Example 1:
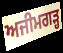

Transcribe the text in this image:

ਅਜੀਮਗੜ੍ਹ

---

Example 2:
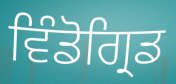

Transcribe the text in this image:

ਵਿੰਡੋਗ੍ਰਿਡ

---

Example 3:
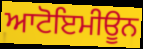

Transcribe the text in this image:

ਆਟੋਇਮੀਊਨ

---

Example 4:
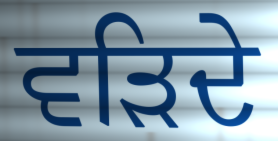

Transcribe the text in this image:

ਵੜਿਦੇ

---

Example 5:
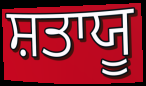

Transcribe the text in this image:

ਸ਼ਤਾਯੂ